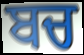
ਬਚ